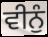
ਵੀਨੁੰ